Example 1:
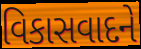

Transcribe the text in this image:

વિકાસવાદને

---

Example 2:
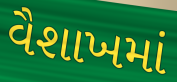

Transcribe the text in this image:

વૈશાખમાં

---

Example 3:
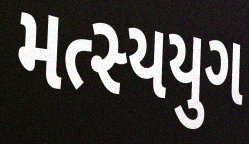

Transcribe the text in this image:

મત્સ્યયુગ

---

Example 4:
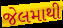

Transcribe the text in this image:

જેલમાથી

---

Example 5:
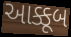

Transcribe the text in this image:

આક્કૂબ